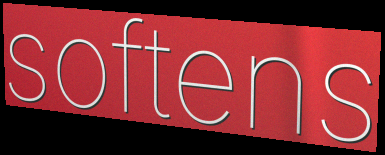
softens